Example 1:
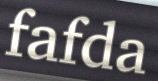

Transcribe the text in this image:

fafda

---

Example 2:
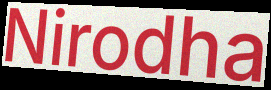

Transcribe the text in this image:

Nirodha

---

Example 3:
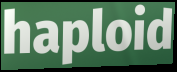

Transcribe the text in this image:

haploid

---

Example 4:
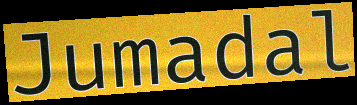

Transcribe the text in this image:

Jumadal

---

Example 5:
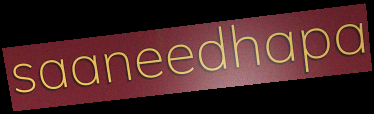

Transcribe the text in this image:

saaneedhapa